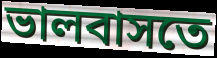
ভালবাসতে